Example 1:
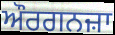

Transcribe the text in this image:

ਔਰਗਨਜ਼ਾ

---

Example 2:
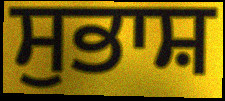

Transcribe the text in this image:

ਸੁਭਾਸ਼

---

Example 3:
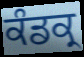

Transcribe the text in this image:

ਕੰਡਕ੍ਰ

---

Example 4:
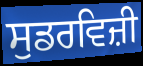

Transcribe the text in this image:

ਸੁਡਰਵਿਜ਼ੀ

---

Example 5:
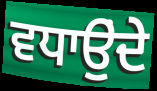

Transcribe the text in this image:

ਵਧਾਉੁਂਦੇ